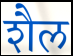
शैल